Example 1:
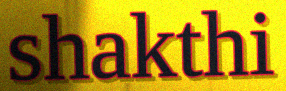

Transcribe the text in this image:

shakthi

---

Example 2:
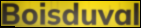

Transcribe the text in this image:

Boisduval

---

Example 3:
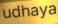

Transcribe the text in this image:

udhaya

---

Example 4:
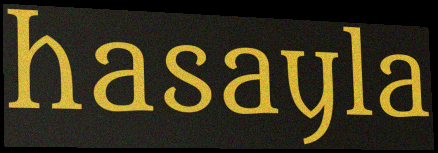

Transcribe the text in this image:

hasayla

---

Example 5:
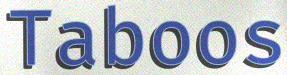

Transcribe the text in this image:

Taboos